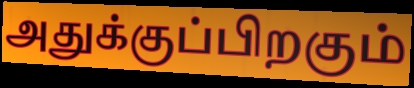
அதுக்குப்பிறகும்